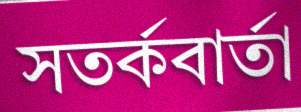
সতর্কবার্তা